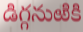
డిగ్గనుఱికి